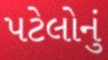
પટેલોનું